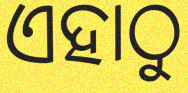
ଏହାଠୁ